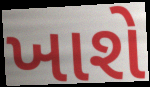
ખાશે